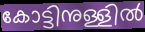
കോട്ടിനുള്ളിൽ